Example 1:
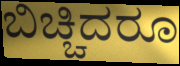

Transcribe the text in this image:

ಬಿಚ್ಚಿದರೂ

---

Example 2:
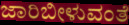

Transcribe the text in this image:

ಜಾರಿಬೀಳುವಂತೆ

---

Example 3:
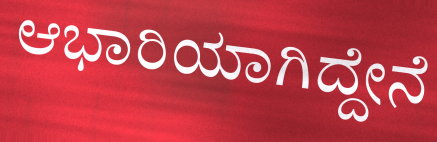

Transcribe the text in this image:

ಆಭಾರಿಯಾಗಿದ್ದೇನೆ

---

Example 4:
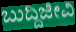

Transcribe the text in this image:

ಬುದ್ದಿಜೀವಿ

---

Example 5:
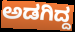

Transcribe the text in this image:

ಅಡಗಿದ್ದ